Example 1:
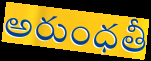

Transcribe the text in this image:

అరుంధతీ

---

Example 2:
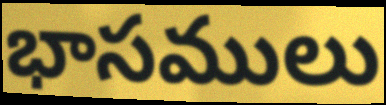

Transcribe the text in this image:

భాసములు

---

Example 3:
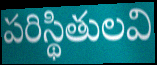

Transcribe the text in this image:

పరిస్థితులవి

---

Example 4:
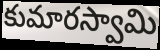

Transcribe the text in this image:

కుమారస్వామి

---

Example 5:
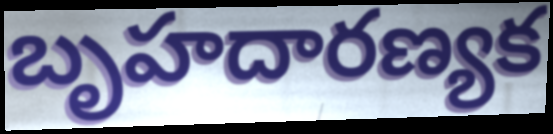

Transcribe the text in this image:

బృహదారణ్యక